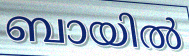
ബായിൽ